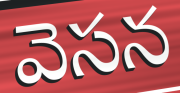
వెసన